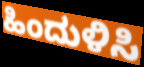
ಹಿಂದುಳಿಸಿ